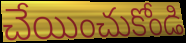
చేయించుకోండి